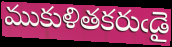
ముకుళితకరుఁడై